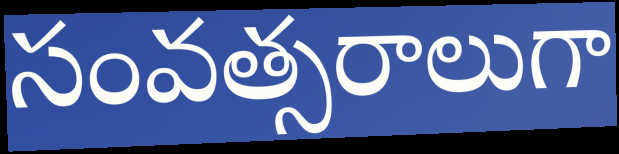
సంవత్సరాలుగా